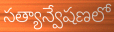
సత్యాన్వేషణలో